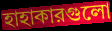
হাহাকারগুলো